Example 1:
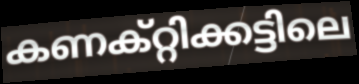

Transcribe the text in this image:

കണക്റ്റിക്കട്ടിലെ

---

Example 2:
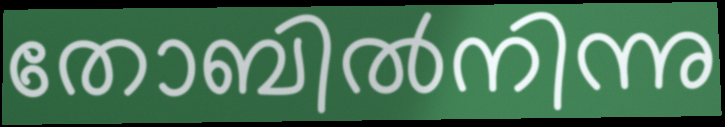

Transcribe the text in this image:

തോബിൽനിന്നു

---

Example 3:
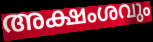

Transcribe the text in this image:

അക്ഷംശവും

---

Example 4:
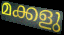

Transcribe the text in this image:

മക്കളു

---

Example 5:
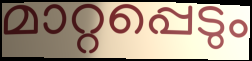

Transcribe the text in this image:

മാറ്റപ്പെടും